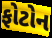
ફોટોન